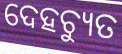
ଦେହଚ୍ୟୁତ